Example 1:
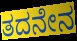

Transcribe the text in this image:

ತದನೇನ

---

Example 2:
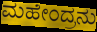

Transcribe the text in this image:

ಮಹೇಂದ್ರನು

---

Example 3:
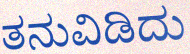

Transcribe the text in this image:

ತನುವಿಡಿದು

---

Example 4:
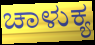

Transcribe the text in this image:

ಚಾಳುಕ್ಯ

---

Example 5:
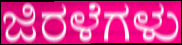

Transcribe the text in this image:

ಜಿರಳೆಗಳು